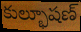
కుల్భూషణ్